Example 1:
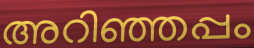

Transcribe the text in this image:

അറിഞ്ഞപ്പം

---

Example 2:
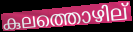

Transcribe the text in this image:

കുലത്തൊഴില്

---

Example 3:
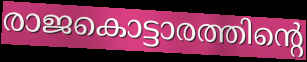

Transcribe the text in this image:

രാജകൊട്ടാരത്തിന്റെ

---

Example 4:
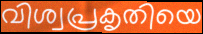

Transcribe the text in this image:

വിശ്വപ്രകൃതിയെ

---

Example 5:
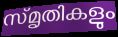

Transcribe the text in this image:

സ്മൃതികളും